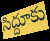
సిద్దూకు